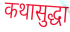
कथासुद्धा